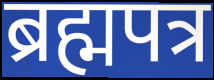
ब्रह्मपत्र